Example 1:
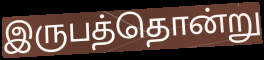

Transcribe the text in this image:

இருபத்தொன்று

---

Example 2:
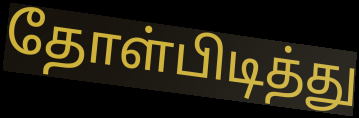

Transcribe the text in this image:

தோள்பிடித்து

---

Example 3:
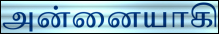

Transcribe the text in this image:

அன்னையாகி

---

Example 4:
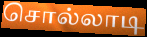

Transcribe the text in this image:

சொல்லாடி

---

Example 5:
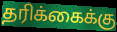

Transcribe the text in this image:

தரிக்கைக்கு